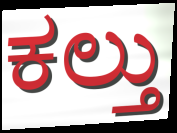
ಕಲ್ತು